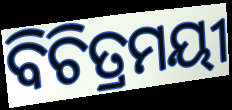
ବିଚିତ୍ରମୟୀ